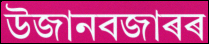
উজানবজাৰৰ